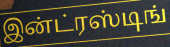
இன்ட்ரஸ்டிங்